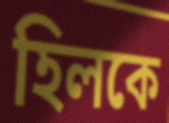
হিলকে